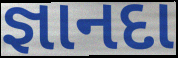
જ્ઞાનદા